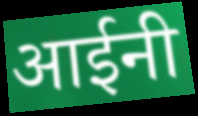
आईनी